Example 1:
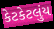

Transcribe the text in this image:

કેટકેટલુંય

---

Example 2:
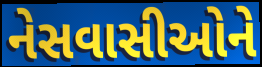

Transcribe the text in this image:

નેસવાસીઓને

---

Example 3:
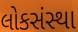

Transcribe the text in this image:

લોકસંસ્થા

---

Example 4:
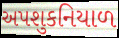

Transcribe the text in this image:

અપશુકનિયાળ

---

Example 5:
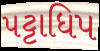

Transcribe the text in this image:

પટ્ટાધિપ